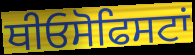
ਥੀਓਸੋਫਿਸਟਾਂ